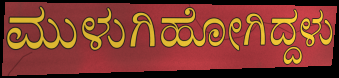
ಮುಳುಗಿಹೋಗಿದ್ದಳು